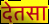
देतसा